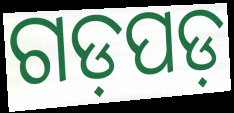
ଗଡ଼ପଡ଼